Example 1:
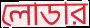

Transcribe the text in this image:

লোডার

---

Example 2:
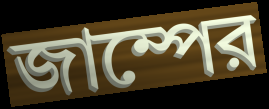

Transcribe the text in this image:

জাম্পের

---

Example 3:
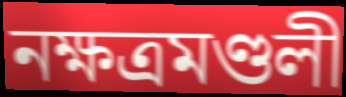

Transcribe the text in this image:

নক্ষত্রমণ্ডলী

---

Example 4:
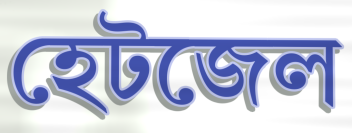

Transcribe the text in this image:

হেটজেল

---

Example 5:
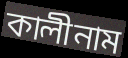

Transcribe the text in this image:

কালীনাম